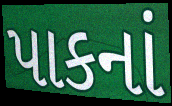
પાકનાં